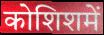
कोशिशमें